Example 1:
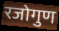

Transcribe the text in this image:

रजोगुण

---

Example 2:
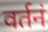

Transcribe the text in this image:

वर्तनं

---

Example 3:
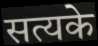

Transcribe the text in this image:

सत्यके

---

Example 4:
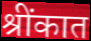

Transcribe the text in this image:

श्रींकात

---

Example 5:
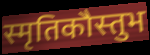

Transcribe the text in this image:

स्मृतिकौस्तुभ